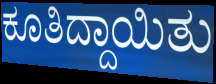
ಕೂತಿದ್ದಾಯಿತು